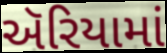
ઍરિયામાં